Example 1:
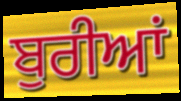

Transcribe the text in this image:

ਬੁਰੀਆਂ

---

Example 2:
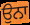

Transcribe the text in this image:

ਉਨਾ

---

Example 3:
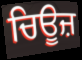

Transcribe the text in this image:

ਚਿਊਜ਼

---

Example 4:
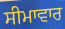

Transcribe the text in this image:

ਸੀਮਾਵਾਰ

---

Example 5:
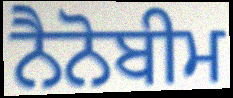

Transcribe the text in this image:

ਨੈਨੋਬੀਮ